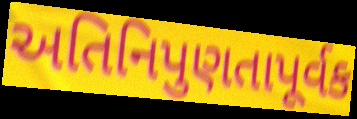
અતિનિપુણતાપૂર્વક